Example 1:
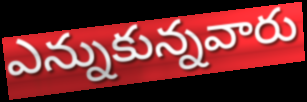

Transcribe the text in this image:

ఎన్నుకున్నవారు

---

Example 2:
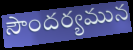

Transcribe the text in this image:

సౌందర్యమున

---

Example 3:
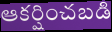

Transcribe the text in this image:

ఆకర్షించబడి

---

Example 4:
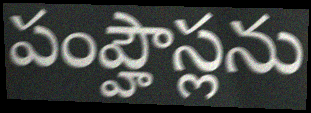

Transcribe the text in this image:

పంప్హౌస్లను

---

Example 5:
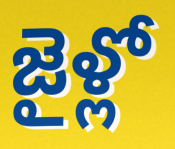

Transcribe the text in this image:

జైళ్లో